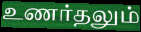
உணர்தலும்